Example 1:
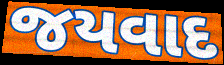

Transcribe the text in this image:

જયવાદ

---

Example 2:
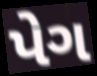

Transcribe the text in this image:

પેગ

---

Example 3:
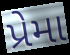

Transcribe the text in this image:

પ્રેમા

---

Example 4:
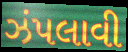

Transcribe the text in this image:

ઝંપલાવી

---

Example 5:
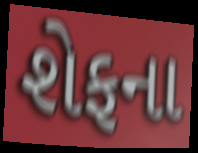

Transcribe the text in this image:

શેફના